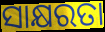
ସାକ୍ଷରତା